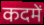
कदमें